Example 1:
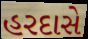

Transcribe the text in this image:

હરદાસે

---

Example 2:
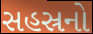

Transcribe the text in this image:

સહસ્રનો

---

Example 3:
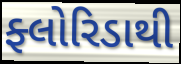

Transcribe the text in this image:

ફ્લોરિડાથી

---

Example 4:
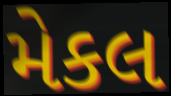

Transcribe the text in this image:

મેકલ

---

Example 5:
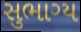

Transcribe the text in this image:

સુભાગ્ય